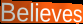
Believes